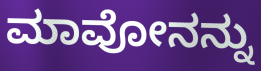
ಮಾವೋನನ್ನು